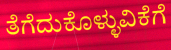
ತೆಗೆದುಕೊಳ್ಳುವಿಕೆಗೆ